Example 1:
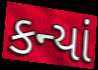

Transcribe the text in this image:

કન્યાં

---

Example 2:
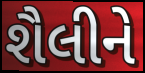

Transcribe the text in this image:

શૈલીને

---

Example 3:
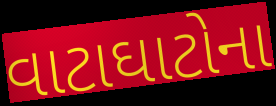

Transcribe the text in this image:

વાટાઘાટોના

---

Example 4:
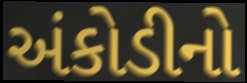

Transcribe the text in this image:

અંકોડીનો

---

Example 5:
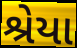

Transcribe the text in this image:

શ્રેયા